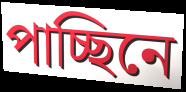
পাচ্ছিনে